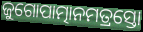
ଜୁଗୋପାତ୍ମାନମତ୍ରସ୍ତୋ